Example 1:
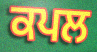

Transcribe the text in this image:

ਕਪਲ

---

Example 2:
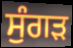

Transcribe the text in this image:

ਸੁੰਗੜ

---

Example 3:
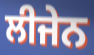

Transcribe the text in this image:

ਲੀਜੇਨ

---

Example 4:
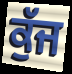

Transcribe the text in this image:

ਕੁੱਜ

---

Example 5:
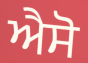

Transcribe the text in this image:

ਐਸੋ